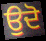
ਉਦੋ